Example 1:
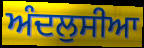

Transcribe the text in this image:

ਅੰਦਲੁਸੀਆ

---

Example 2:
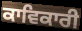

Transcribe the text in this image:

ਕਾਵਿਕਾਰੀ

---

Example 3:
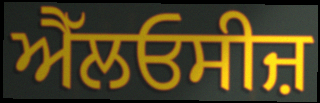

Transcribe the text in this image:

ਐੱਲਓਸੀਜ਼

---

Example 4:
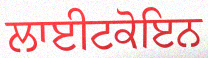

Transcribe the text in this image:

ਲਾਈਟਕੋਇਨ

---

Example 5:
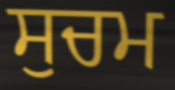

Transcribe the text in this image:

ਸੁਚਮ